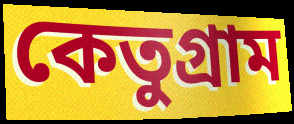
কেতুগ্রাম